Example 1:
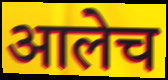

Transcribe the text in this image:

आलेच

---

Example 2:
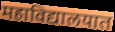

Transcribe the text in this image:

महाविद्यालयात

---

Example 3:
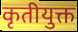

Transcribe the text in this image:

कृतीयुक्त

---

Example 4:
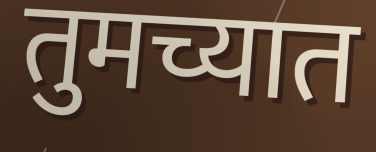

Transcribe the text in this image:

तुमच्यात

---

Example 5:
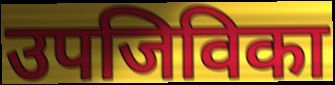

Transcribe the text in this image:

उपजिविका